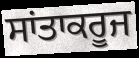
ਸਾਂਤਾਕਰੂਜ